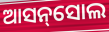
ଆସନ୍‌ସୋଲ